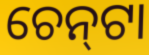
ଚେନ୍‌ଟା